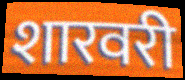
शारवरी